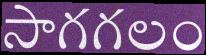
సాగగలం